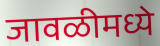
जावळीमध्ये